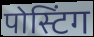
पोस्टिंग